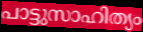
പാട്ടുസാഹിത്യം